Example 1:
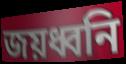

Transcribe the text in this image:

জয়ধ্বনি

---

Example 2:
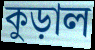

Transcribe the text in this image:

কুড়াল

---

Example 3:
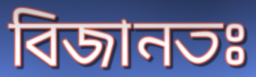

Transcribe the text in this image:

বিজানতঃ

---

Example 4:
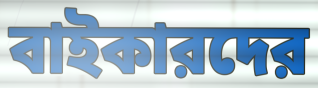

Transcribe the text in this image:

বাইকারদের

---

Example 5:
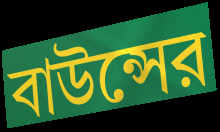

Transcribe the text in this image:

বাউন্সের